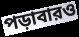
পড়াবারও